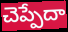
చెప్పేదా